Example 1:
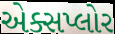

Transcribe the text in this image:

એક્સપ્લોર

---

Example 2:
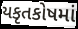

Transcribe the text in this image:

યકૃતકોષમાં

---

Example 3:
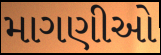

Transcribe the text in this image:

માગણીઓ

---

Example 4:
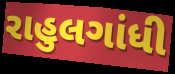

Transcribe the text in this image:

રાહુલગાંધી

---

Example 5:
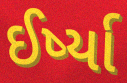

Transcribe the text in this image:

ઈર્ષ્યા